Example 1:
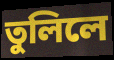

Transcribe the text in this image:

তুলিলে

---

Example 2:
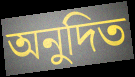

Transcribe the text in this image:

অনুদিত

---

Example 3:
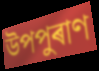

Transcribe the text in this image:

উপপুৰাণ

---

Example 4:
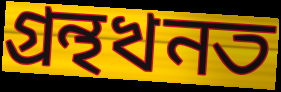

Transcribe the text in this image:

গ্ৰন্থখনত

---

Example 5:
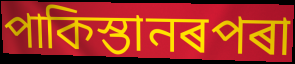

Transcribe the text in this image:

পাকিস্তানৰপৰা